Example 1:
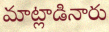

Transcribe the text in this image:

మాట్లాడినారు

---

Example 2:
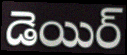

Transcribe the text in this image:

డెయిర్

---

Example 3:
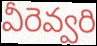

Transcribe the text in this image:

వీరెవ్వరి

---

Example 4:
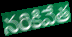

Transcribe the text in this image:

నరికివేత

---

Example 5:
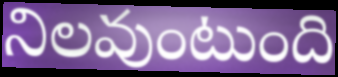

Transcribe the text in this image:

నిలవుంటుంది